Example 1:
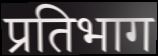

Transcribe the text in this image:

प्रतिभाग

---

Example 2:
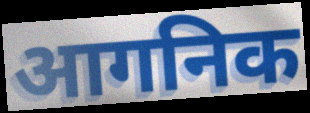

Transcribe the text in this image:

आगनिक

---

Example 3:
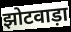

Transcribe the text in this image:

झोटवाड़ा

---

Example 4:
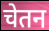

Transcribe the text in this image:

चेतन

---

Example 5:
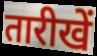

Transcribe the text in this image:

तारीखें